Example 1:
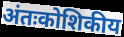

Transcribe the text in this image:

अंतःकोशिकीय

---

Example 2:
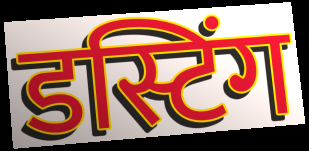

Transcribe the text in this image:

डस्टिंग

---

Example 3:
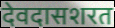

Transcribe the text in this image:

देवदासशरत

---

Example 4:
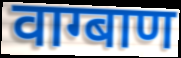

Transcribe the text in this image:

वाग्बाण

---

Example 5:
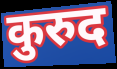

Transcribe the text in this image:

कुरुद